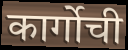
कार्गोची